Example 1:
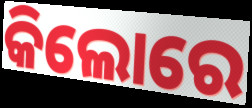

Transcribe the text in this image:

କିଲୋରେ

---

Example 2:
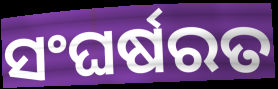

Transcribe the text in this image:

ସଂଘର୍ଷରତ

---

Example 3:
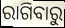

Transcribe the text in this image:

ରାଗିବାରୁ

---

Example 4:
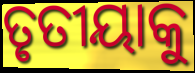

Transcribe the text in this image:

ତୃତୀୟାକୁ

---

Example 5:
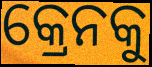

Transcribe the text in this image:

କ୍ରେନକୁ